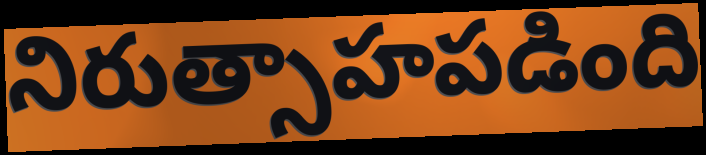
నిరుత్సాహపడింది